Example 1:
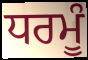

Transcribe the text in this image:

ਧਰਮੂੰ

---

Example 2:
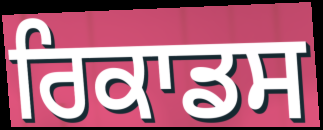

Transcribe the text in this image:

ਰਿਕਾਡਸ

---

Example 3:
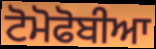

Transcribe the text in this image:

ਟੋਮੋਫੋਬੀਆ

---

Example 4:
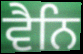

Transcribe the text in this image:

ਵੈਨਿ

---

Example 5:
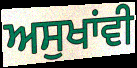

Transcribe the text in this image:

ਅਸੁਖਾਂਵੀ